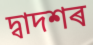
দ্বাদশৰ